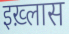
इख़्लास